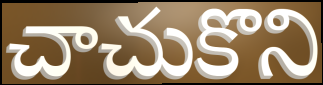
చాచుకొని